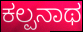
ಕಲ್ಪನಾಥ